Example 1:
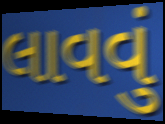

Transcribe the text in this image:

લાવવું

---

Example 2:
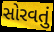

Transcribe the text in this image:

સોરવતું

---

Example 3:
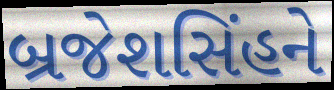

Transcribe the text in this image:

બ્રજેશસિંહને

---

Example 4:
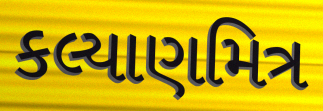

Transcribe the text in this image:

કલ્યાણમિત્ર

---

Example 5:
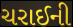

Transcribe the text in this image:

ચરાઈની